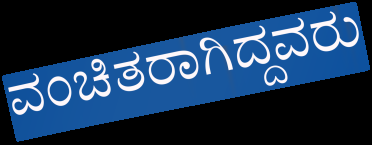
ವಂಚಿತರಾಗಿದ್ದವರು